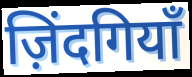
ज़िंदगियाँ